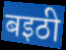
बइठी